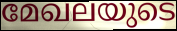
മേഖലയുടെ